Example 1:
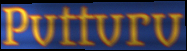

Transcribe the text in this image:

Putturu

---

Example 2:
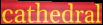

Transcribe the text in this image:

cathedral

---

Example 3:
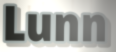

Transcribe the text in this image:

Lunn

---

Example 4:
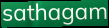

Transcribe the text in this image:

sathagam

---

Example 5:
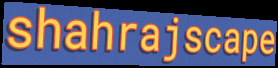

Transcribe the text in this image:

shahrajscape